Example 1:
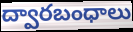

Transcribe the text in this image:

ద్వారబంధాలు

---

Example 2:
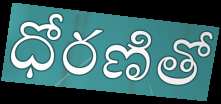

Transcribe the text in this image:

ధోరణితో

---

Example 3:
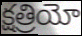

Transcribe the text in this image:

క్షత్రియో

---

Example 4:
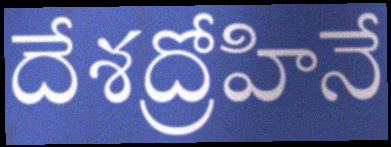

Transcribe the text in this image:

దేశద్రోహినే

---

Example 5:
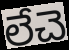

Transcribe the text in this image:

లేచె